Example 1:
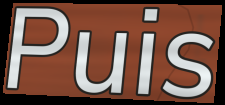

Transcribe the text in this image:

Puis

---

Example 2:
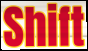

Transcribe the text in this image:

Shift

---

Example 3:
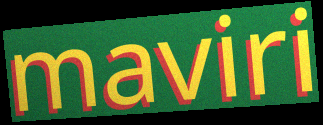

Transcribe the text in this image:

maviri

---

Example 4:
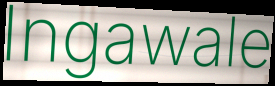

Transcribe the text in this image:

Ingawale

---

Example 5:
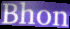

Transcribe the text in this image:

Bhon